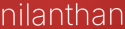
nilanthan